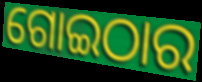
ଗୋଇଠାର